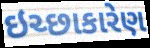
ઇચ્છાકારેણ